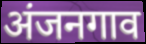
अंजनगाव